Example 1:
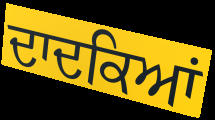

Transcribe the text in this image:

ਦਾਦਕਿਆਂ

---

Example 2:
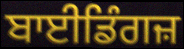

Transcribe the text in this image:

ਬਾਈਡਿੰਗਜ਼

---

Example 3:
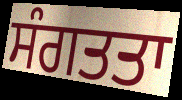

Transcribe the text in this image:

ਸੰਗਤਤਾ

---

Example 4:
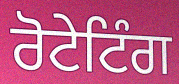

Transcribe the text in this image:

ਰੋਟੇਟਿੰਗ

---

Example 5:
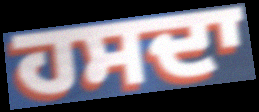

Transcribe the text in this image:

ਹਸਦਾ